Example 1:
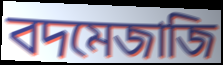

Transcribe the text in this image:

বদমেজাজি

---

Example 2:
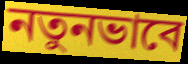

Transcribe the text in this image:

নতুনভাবে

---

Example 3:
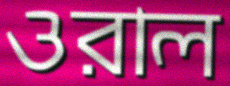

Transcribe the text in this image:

ওরাল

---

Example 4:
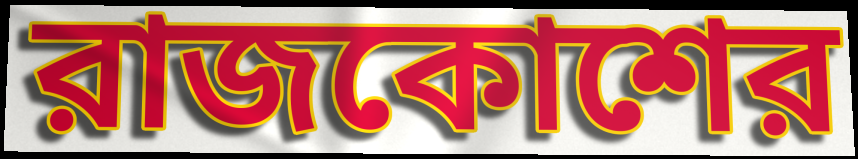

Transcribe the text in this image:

রাজকোশের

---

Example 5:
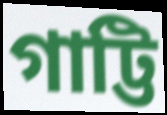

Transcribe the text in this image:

গাট্টি